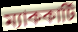
ম্যাককার্টি